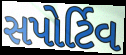
સપોર્ટિવ